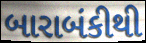
બારાબંકીથી